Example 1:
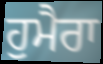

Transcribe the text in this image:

ਹੁਮੈਰਾ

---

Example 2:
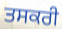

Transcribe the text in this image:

ਤਸਕਰੀ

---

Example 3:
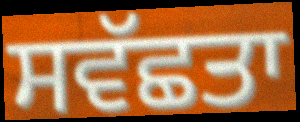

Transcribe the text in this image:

ਸਵੱਛਤਾ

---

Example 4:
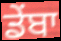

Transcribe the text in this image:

ਡੇਂਬਾ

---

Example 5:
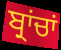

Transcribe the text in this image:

ਬ੍ਰਾਂਚਾਂ